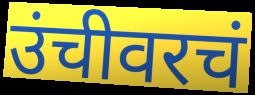
उंचीवरचं